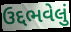
ઉદ્દભવેલું